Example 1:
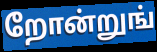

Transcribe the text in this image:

றோன்றுங்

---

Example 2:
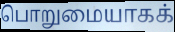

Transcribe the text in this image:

பொறுமையாகக்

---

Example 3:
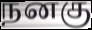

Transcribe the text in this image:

நனகு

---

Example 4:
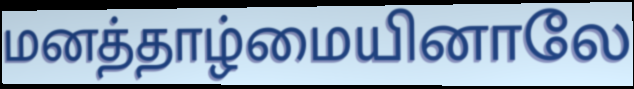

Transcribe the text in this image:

மனத்தாழ்மையினாலே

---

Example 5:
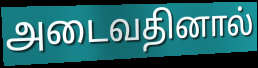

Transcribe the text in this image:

அடைவதினால்